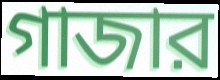
গাজার